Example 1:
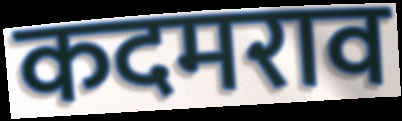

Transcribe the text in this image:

कदमराव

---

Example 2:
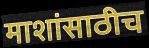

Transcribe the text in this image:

माशांसाठीच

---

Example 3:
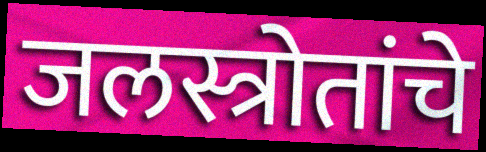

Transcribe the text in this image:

जलस्त्रोतांचे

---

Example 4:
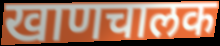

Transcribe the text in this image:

खाणचालक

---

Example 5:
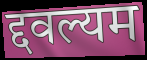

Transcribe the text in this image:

द्दवल्यम